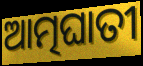
ଆତ୍ମଘାତୀ